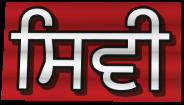
ਸਿਵੀ